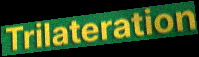
Trilateration